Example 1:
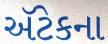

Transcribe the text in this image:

ઍટેકના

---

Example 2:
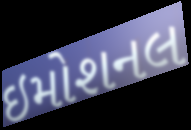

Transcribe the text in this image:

ઇમોશનલ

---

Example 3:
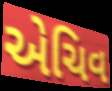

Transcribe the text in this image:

એચિવ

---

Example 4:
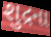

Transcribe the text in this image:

શુદ્રના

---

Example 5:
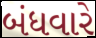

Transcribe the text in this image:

બંધવારે